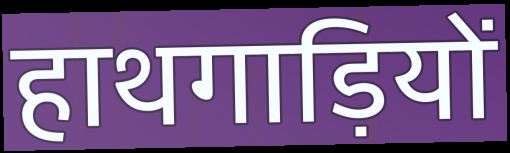
हाथगाड़ियों